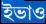
ইভাও